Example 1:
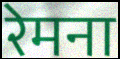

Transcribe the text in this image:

रेमना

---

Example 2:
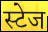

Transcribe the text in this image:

स्टेज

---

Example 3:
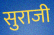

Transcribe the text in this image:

सुराजी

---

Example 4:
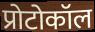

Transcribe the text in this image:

प्रोटोकॉल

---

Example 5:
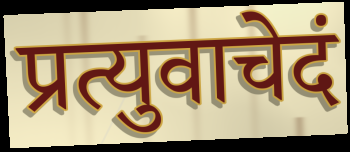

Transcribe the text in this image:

प्रत्युवाचेदं